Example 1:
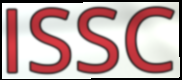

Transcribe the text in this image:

ISSC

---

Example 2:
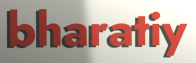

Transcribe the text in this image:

bharatiy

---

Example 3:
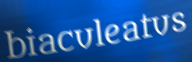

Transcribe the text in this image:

biaculeatus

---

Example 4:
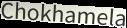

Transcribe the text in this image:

Chokhamela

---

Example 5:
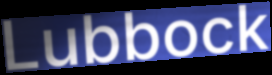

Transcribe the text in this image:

Lubbock